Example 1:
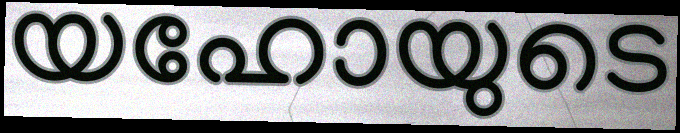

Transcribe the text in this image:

യഹോയുടെ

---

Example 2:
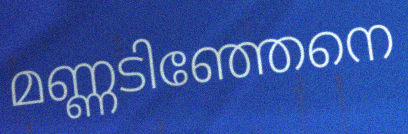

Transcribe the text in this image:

മണ്ണടിഞ്ഞേനെ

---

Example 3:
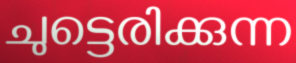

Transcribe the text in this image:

ചുട്ടെരിക്കുന്ന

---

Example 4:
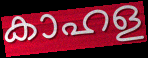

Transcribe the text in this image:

കാഹള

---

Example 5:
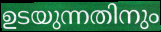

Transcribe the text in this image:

ഉടയുന്നതിനും